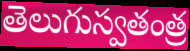
తెలుగుస్వతంత్ర